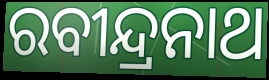
ରବୀନ୍ଦ୍ରନାଥ